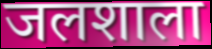
जलशाला